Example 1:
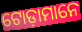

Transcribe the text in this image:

ଟୋଡ଼ାମାନେ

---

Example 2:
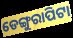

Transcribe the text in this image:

ଡେଙ୍ଗୁରାପିଟା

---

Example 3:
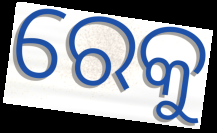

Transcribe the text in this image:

ରେକୁ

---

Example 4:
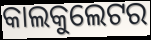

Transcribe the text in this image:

କାଲକୁଲେଟର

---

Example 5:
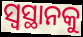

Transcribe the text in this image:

ସ୍ୱସ୍ଥାନକୁ